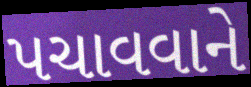
પચાવવાને